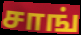
சாங்